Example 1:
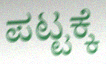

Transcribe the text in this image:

ಪಟ್ಟಕ್ಕೆ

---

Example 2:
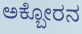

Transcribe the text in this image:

ಅಕ್ಬೋರನ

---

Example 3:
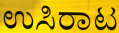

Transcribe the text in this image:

ಉಸಿರಾಟ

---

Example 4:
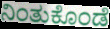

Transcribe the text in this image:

ನಿಂತುಕೊಂಡೆ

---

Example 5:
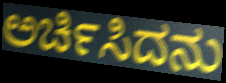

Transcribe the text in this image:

ಅರ್ಚಿಸಿದನು